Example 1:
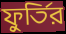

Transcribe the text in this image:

ফুর্তির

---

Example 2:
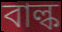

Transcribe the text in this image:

বাল্ক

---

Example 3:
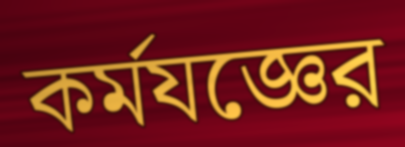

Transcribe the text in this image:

কর্মযজ্ঞের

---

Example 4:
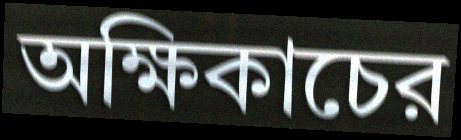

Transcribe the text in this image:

অক্ষিকাচের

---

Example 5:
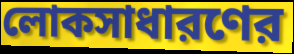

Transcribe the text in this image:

লোকসাধারণের